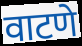
वाटणे